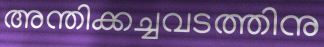
അന്തിക്കച്ചവടത്തിനു